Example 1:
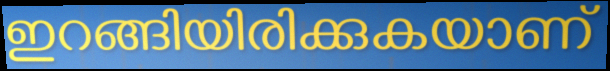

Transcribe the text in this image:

ഇറങ്ങിയിരിക്കുകയാണ്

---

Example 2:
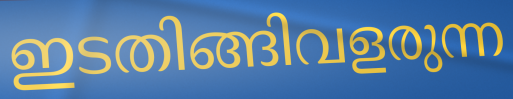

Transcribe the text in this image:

ഇടതിങ്ങിവളരുന്ന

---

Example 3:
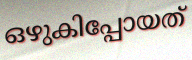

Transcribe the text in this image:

ഒഴുകിപ്പോയത്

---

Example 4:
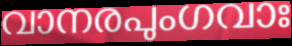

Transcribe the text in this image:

വാനരപുംഗവാഃ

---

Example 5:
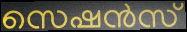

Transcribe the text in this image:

സെഷൻസ്